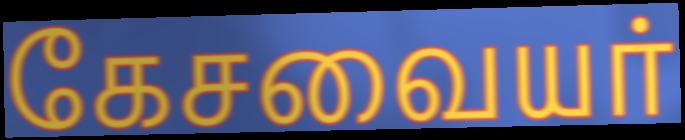
கேசவையர்